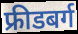
फ्रीडबर्ग